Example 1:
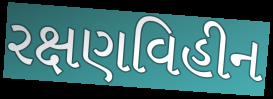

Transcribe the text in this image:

રક્ષણવિહીન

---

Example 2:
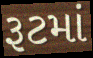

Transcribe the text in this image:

રૂટમાં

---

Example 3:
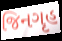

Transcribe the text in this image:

જિનગૃહ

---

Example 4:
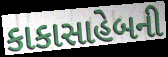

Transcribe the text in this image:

કાકાસાહેબની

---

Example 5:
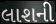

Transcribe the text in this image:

લાશની